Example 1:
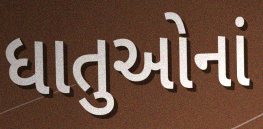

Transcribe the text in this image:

ધાતુઓનાં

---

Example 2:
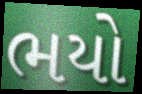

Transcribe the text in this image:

ભયો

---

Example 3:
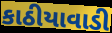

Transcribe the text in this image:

કાઠીયાવાડી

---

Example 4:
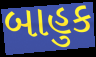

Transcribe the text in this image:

બાહુક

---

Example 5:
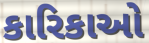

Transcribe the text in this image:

કારિકાઓ